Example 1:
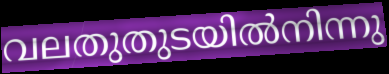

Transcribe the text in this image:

വലതുതുടയിൽനിന്നു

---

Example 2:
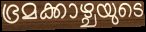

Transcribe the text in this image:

ഭ്രമക്കാഴ്ചയുടെ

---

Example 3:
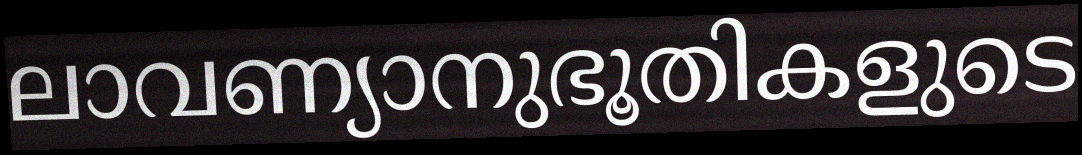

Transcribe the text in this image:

ലാവണ്യാനുഭൂതികളുടെ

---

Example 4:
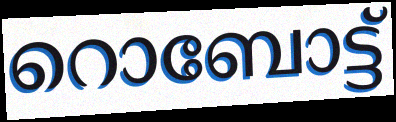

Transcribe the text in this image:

റൊബോട്ട്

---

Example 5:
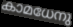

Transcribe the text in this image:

കാമധേനു